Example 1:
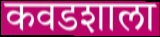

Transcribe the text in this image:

कवडशाला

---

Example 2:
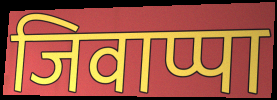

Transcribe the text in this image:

जिवाप्पा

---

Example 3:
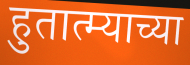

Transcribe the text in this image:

हुतात्म्याच्या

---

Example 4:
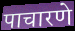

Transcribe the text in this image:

पाचारणे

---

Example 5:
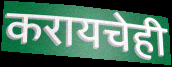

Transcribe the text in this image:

करायचेही